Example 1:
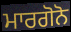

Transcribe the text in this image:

ਮਾਰਗੋਨੋ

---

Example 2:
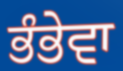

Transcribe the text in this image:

ਭੰਭੇਵਾ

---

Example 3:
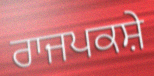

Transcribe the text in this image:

ਰਾਜਪਕਸ਼ੇ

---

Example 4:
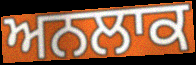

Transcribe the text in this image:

ਅਨਲਾਕ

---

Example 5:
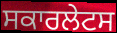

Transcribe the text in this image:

ਸਕਾਰਲੇਟਸ